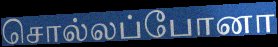
சொல்லப்போனா